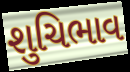
શુચિભાવ